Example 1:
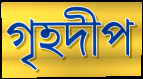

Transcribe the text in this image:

গৃহদীপ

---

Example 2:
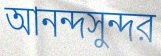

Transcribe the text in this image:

আনন্দসুন্দর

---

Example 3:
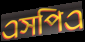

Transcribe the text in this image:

এসপিএ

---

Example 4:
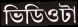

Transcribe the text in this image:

ভিডিওটা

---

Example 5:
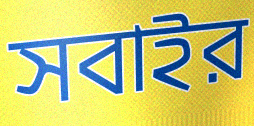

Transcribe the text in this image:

সবাইর